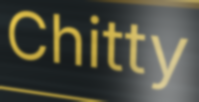
Chitty